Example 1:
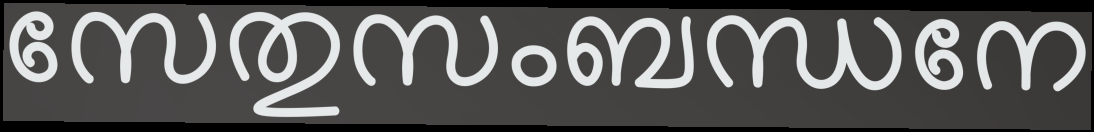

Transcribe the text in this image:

സേതുസംബന്ധനേ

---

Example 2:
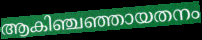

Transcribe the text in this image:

ആകിഞ്ചഞ്ഞായതനം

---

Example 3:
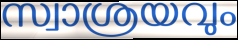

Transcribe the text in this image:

സ്വാശ്രയവും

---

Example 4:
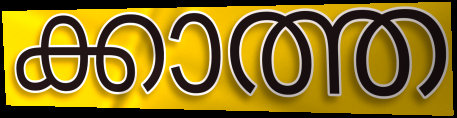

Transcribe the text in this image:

ക്കാത്ത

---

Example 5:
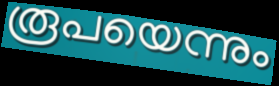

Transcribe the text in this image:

രൂപയെന്നും